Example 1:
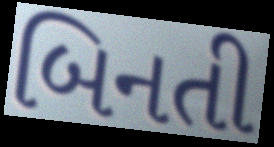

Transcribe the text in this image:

બિનતી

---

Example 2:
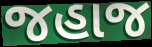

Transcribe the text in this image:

જહાજ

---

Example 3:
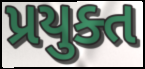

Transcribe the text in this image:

પ્રયુક્ત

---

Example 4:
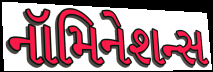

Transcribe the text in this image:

નૉમિનેશન્સ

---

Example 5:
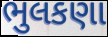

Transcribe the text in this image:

ભુલકણા